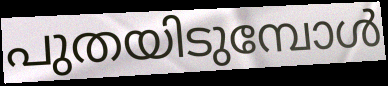
പുതയിടുമ്പോൾ